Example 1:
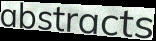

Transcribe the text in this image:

abstracts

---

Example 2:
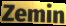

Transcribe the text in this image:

Zemin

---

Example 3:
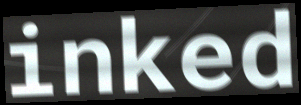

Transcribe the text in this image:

inked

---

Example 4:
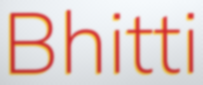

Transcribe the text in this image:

Bhitti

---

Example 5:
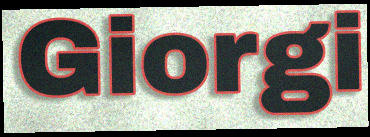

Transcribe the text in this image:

Giorgi